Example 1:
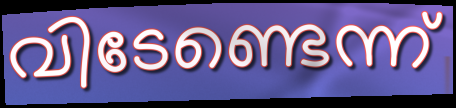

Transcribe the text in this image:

വിടേണ്ടെന്ന്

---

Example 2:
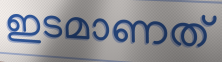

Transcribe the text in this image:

ഇടമാണത്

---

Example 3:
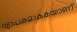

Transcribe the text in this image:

വ്യാപകമാകുകയാണ്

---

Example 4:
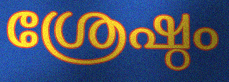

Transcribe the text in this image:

ശ്രേഷ്ഠം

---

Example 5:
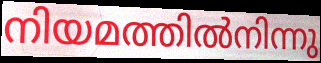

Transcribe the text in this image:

നിയമത്തിൽനിന്നു